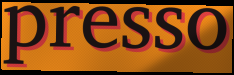
presso